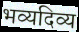
भव्यदिव्य